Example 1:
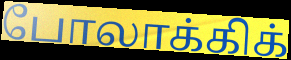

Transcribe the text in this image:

போலாக்கிக்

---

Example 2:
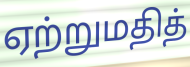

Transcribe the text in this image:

ஏற்றுமதித்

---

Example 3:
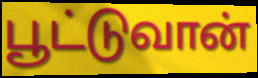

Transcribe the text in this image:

பூட்டுவான்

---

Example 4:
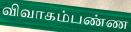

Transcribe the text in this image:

விவாகம்பண்ண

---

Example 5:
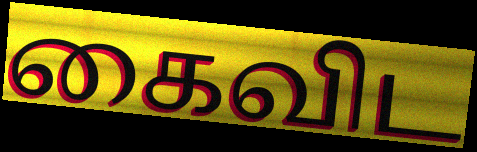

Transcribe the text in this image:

கைவிட